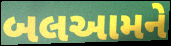
બલઆમને